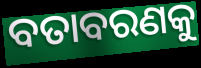
ବତାବରଣକୁ